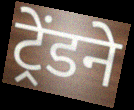
ट्रेंडने